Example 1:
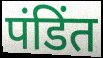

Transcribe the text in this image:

पंडिंत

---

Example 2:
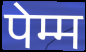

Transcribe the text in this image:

पेम्म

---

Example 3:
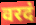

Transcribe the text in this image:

वरदं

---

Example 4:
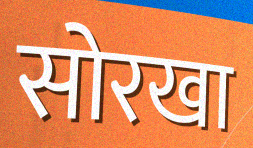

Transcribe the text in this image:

सोरखा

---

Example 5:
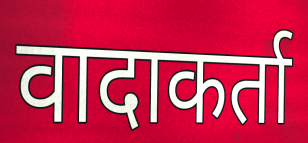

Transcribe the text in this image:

वादाकर्ता